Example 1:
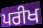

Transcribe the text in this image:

ਪਰੀਖ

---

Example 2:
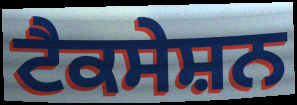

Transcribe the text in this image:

ਟੈਕਸੇਸ਼ਨ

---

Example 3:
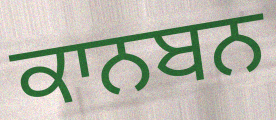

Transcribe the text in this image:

ਕਾਨਬਨ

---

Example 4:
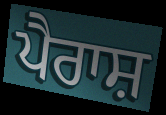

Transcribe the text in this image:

ਪੈਰਾਸ਼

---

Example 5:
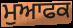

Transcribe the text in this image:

ਮੁਆਫਕ